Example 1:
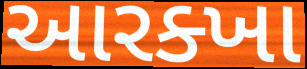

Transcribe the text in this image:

આરક્ખા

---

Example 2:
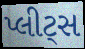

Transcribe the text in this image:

પ્લીટ્સ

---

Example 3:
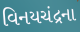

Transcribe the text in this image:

વિનયચંદ્રના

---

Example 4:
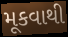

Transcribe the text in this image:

મૂકવાથી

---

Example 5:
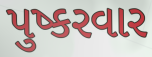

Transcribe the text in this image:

પુષ્કરવાર